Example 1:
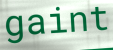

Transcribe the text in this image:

gaint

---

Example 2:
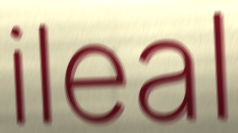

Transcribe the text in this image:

ileal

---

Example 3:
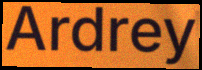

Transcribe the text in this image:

Ardrey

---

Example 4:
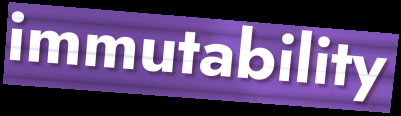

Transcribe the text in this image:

immutability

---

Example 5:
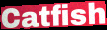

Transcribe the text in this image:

Catfish